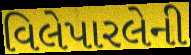
વિલેપારલેની